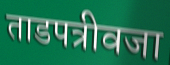
ताडपत्रीवजा